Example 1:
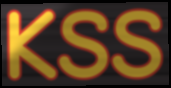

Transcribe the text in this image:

KSS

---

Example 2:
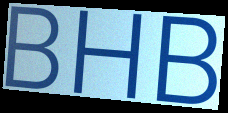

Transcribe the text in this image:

BHB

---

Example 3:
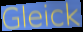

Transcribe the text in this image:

Gleick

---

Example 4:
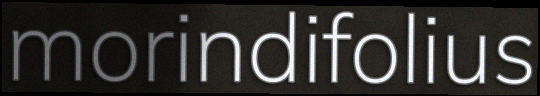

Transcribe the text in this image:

morindifolius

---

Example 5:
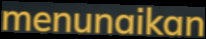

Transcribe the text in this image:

menunaikan